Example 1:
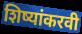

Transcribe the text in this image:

शिष्यांकरवी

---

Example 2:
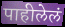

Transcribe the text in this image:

पाहीलेलं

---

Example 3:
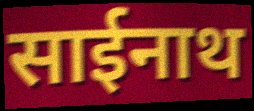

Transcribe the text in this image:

साईनाथ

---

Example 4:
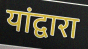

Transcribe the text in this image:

यांद्वारा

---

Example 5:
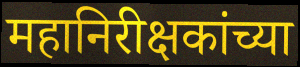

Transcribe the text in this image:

महानिरीक्षकांच्या